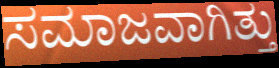
ಸಮಾಜವಾಗಿತ್ತು